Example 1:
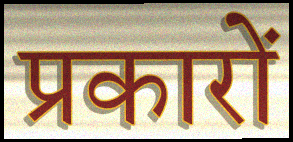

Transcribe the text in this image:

प्रकारों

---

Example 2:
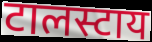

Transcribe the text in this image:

टालस्टाय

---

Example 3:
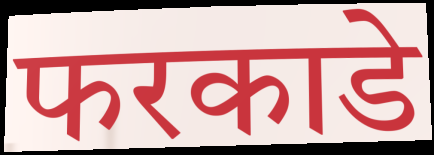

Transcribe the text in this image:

फरकाडे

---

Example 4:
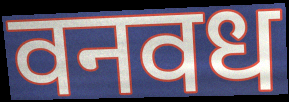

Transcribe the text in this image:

वनवध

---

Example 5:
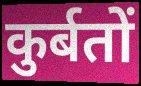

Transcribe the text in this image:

कुर्बतों